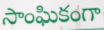
సాంఘికంగా